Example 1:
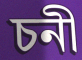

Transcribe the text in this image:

চনী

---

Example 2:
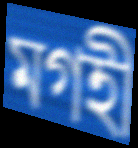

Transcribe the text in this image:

মগহী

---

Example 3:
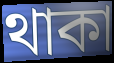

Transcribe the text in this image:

থাকা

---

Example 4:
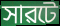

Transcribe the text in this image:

সাৱটে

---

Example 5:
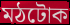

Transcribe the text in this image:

মঠটোক